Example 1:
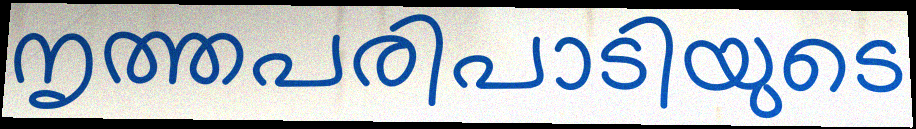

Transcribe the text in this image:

നൃത്തപരിപാടിയുടെ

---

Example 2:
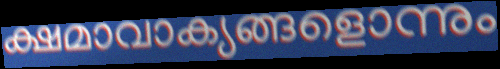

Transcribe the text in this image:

ക്ഷമാവാക്യങ്ങളൊന്നും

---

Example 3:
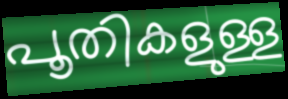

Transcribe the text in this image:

പൂതികളുള്ള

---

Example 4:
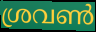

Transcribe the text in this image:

ശ്രവൺ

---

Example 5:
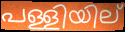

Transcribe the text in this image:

പള്ളിയില്